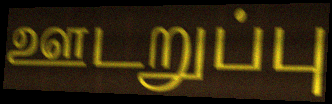
ஊடறுப்பு